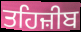
ਤਹਿਜ਼ੀਬ